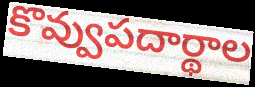
కొవ్వుపదార్థాల